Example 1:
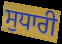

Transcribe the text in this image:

ਸੁਧਾਰੀ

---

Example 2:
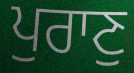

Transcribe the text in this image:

ਪੁਰਾਣੁ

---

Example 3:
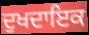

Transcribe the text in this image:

ਦੁਖਦਾਇਕ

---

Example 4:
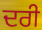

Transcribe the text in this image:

ਦਰੀ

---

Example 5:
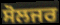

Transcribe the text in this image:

ਸੋਲਜਰ